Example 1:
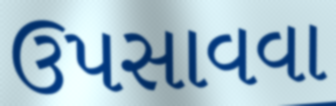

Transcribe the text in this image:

ઉપસાવવા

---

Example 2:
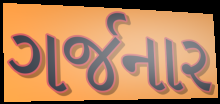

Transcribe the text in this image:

ગર્જનાર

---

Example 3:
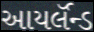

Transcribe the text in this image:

આયર્લૅન્ડ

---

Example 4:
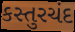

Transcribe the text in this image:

કસ્તુરચંદ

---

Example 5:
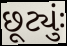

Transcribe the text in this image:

છૂટ્યુંઃ